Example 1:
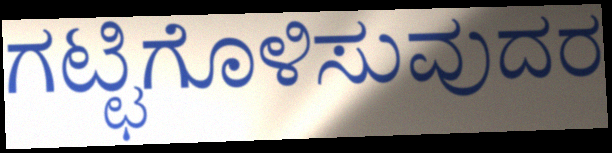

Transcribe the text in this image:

ಗಟ್ಟಿಗೊಳಿಸುವುದರ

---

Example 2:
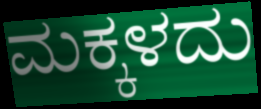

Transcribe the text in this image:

ಮಕ್ಕಳದು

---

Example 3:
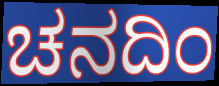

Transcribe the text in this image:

ಚನದಿಂ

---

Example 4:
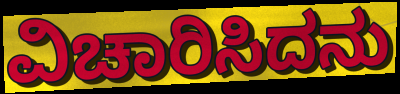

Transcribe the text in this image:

ವಿಚಾರಿಸಿದನು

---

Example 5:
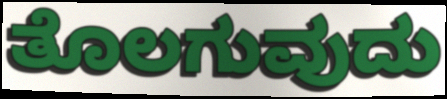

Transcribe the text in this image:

ತೊಲಗುವುದು